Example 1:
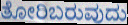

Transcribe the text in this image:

ತೋರಿಬರುವುದು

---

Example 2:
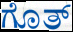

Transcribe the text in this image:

ಗೊತ್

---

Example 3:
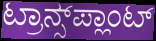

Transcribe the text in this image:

ಟ್ರಾನ್ಸ್‌ಪ್ಲಾಂಟ್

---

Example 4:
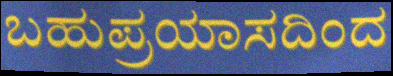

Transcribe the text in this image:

ಬಹುಪ್ರಯಾಸದಿಂದ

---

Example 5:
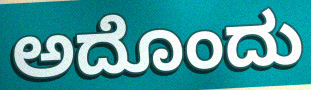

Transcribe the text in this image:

ಅದೊಂದು